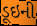
ડૂઇની